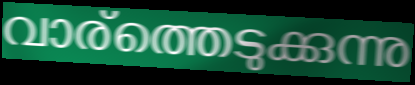
വാര്ത്തെടുക്കുന്നു